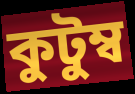
কুটুম্ব